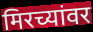
मिरच्यांवर